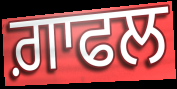
ਗ਼ਾਫਲ